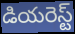
డియరెస్ట్